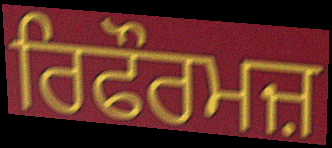
ਰਿਫੌਰਮਜ਼